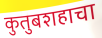
कुतुबशहाचा